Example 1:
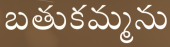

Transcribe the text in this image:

బతుకమ్మను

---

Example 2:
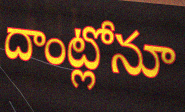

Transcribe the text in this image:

దాంట్లోనూ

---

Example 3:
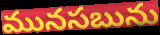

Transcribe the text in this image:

మునసబును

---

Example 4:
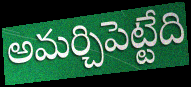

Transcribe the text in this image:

అమర్చిపెట్టేది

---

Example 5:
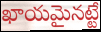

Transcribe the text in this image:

ఖాయమైనట్టే